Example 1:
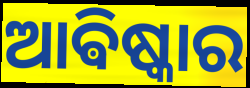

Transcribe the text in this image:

ଆଵିଷ୍କାର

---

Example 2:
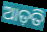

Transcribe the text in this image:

ଆଡ଼ତି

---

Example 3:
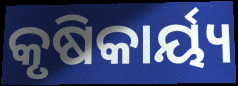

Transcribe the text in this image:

କୃଷିକାର୍ୟ୍ୟ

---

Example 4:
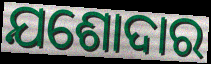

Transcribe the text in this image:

ଯଶୋଦାର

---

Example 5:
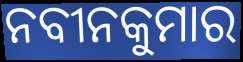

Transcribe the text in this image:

ନବୀନକୁମାର